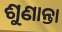
ଶୁଣାନ୍ତା